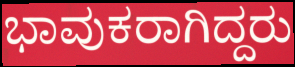
ಭಾವುಕರಾಗಿದ್ದರು